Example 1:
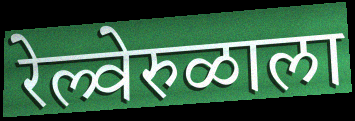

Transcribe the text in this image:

रेल्वेरुळाला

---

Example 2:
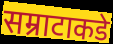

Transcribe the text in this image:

सम्राटाकडे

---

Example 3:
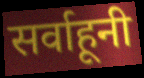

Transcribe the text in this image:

सर्वाहूनी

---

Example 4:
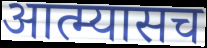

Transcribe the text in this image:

आत्म्यासच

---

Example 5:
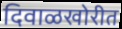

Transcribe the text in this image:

दिवाळखोरीत